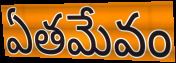
ఏతమేవం